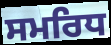
ਸਮਰਿਧ